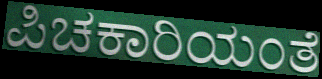
ಪಿಚಕಾರಿಯಂತೆ